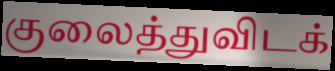
குலைத்துவிடக்